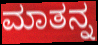
ಮಾತನ್ನ